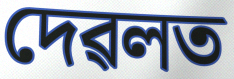
দেৱলত